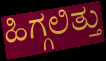
ಹಿಗ್ಗಲಿತ್ತು